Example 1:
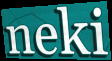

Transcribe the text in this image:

neki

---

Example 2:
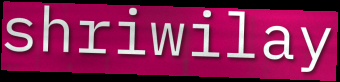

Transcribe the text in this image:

shriwilay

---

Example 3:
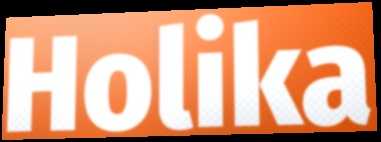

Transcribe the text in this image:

Holika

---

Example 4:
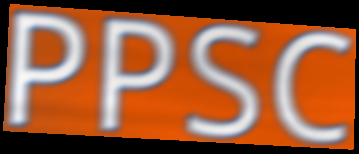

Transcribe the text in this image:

PPSC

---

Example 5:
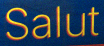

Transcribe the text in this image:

Salut